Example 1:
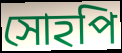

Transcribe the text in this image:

সোহপি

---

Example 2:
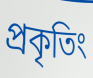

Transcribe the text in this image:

প্রকৃতিং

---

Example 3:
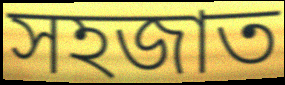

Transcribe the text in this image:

সহজাত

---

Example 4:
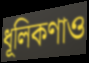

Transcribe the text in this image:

ধূলিকণাও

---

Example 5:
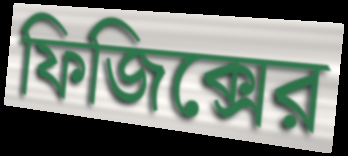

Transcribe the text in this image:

ফিজিক্সের